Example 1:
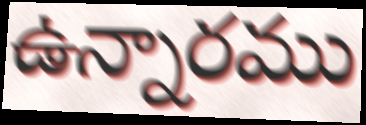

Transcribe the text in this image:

ఉన్నారము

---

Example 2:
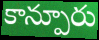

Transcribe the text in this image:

కాన్పూరు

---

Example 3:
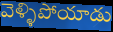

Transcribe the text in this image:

వెళ్ళిపోయాడు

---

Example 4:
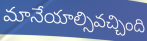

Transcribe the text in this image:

మానేయాల్సివచ్చింది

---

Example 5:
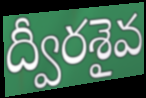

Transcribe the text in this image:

ద్వీరశైవ